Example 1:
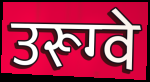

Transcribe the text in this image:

उरूग्वे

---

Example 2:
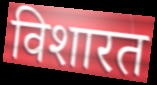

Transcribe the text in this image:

विशारत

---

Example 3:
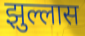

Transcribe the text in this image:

झुल्लास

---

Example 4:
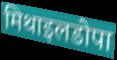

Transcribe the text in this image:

मिथाइलडोपा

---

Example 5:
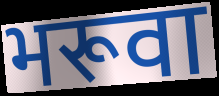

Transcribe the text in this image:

भरूवा